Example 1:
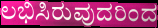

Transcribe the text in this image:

ಲಭಿಸಿರುವುದರಿಂದ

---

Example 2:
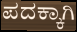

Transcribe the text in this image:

ಪದಕ್ಕಾಗಿ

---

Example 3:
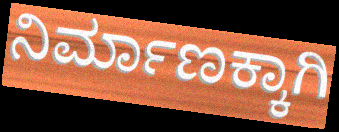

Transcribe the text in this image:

ನಿರ್ಮಾಣಕ್ಕಾಗಿ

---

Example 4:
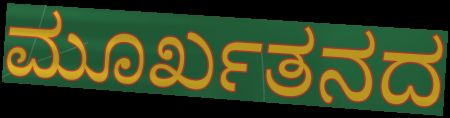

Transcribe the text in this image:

ಮೂರ್ಖತನದ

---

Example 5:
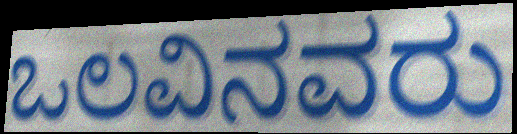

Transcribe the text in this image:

ಒಲವಿನವರು